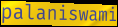
palaniswami